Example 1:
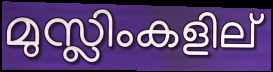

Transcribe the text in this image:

മുസ്ലിംകളില്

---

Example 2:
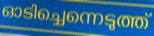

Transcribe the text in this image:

ഓടിച്ചെന്നെടുത്ത്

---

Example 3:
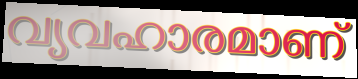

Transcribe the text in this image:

വ്യവഹാരമാണ്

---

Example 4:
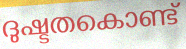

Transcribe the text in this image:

ദുഷ്ടതകൊണ്ട്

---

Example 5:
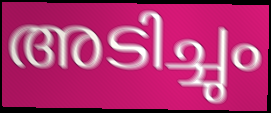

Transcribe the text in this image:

അടിച്ചും